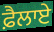
ਫ਼ੈਲਾਏ